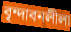
বৃন্দাবনলীলা